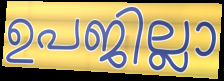
ഉപജില്ലാ